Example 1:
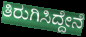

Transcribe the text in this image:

ತಿರುಗಿಸಿದ್ದೇನೆ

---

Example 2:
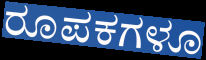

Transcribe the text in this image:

ರೂಪಕಗಳೂ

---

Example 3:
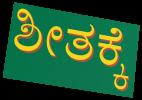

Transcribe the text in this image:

ಶೀತಕ್ಕೆ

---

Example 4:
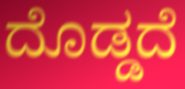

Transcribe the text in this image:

ದೊಡ್ಡದೆ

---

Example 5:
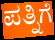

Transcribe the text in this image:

ಪತ್ನಿಗೆ